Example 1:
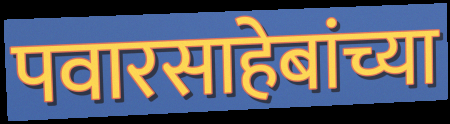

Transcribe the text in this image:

पवारसाहेबांच्या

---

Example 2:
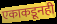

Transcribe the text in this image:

एकाकडूनही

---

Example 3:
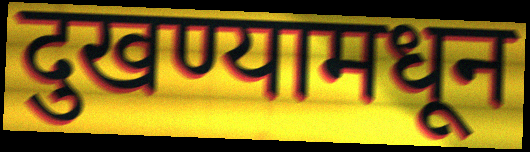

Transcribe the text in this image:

दुखण्यामधून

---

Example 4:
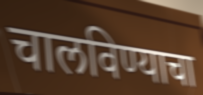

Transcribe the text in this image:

चालविण्याचा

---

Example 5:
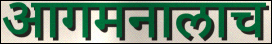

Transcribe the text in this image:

आगमनालाच